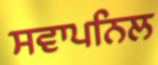
ਸਵਾਪਨਿਲ